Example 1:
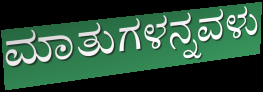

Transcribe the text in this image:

ಮಾತುಗಳನ್ನವಳು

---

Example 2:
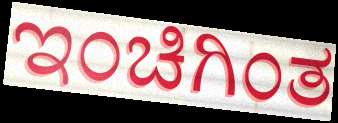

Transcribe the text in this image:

ಇಂಚಿಗಿಂತ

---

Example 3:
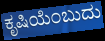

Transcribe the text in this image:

ಕೃಷಿಯೆಂಬುದು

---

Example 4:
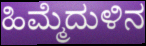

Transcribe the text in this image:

ಹಿಮ್ಮೆದುಳಿನ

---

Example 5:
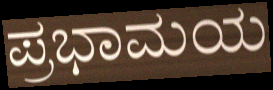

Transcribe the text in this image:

ಪ್ರಭಾಮಯ